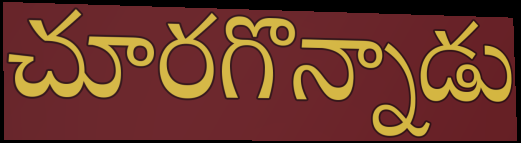
చూరగొన్నాడు